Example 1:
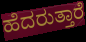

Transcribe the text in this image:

ಹೆದರುತ್ತಾರೆ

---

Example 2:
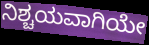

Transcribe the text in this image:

ನಿಶ್ಚಯವಾಗಿಯೇ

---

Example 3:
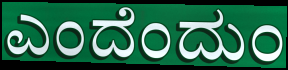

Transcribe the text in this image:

ಎಂದೆಂದುಂ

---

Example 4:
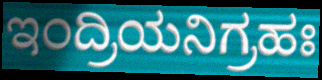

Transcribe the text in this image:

ಇಂದ್ರಿಯನಿಗ್ರಹಃ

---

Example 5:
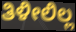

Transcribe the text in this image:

ತಿಳೀಲಿಲ್ಲ